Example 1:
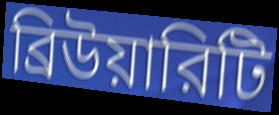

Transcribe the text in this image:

ব্রিউয়ারিটি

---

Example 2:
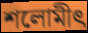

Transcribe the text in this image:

শলোমীৎ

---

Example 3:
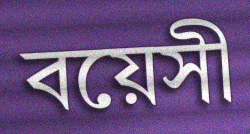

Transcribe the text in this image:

বয়েসী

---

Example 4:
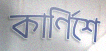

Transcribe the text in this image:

কার্ণিশে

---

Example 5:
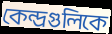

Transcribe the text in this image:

কেন্দ্রগুলিকে